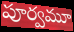
పూర్వమూ